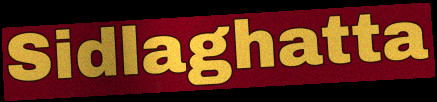
Sidlaghatta